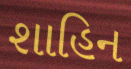
શાહિન